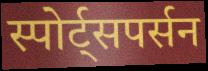
स्पोर्ट्सपर्सन